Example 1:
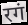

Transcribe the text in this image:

रगं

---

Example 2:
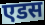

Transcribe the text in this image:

एडस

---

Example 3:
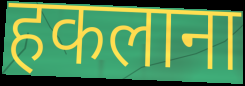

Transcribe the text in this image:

हकलाना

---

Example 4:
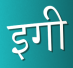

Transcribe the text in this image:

इगी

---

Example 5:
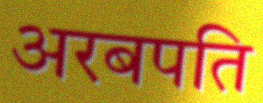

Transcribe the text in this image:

अरबपति